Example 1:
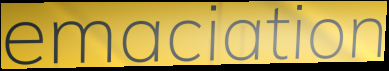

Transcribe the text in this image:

emaciation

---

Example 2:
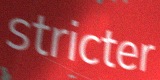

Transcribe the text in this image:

stricter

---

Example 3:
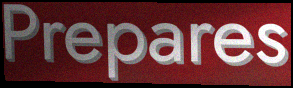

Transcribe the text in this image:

Prepares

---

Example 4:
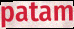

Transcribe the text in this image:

patam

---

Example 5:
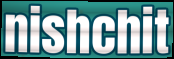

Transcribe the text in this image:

nishchit